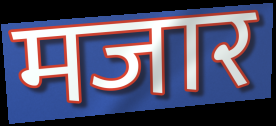
मजार